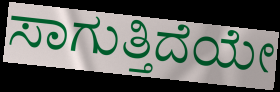
ಸಾಗುತ್ತಿದೆಯೇ